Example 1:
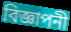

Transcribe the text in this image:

বিজ্ঞাপনী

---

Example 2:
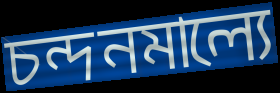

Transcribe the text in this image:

চন্দনমাল্যে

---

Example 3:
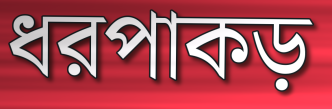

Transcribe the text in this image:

ধরপাকড়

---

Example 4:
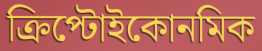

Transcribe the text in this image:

ক্রিপ্টোইকোনমিক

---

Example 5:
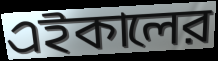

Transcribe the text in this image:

এইকালের